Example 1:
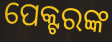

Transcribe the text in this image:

ପେକ୍ଟରଙ୍କ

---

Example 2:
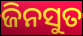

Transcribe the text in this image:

ଜିନସୁତ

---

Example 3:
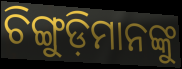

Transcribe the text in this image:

ଚିଙ୍ଗୁଡ଼ିମାନଙ୍କୁ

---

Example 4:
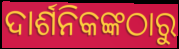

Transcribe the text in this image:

ଦାର୍ଶନିକଙ୍କଠାରୁ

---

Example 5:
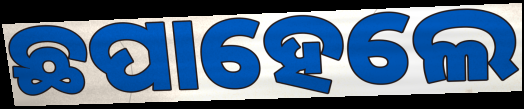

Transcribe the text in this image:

ଛପାହେଲେ